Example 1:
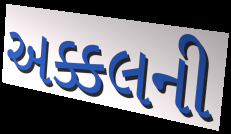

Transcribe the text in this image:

અક્કલની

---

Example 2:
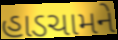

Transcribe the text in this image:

હાડચામને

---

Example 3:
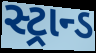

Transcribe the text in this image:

સ્ટ્રાન્ડ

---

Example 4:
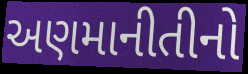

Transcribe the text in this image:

અણમાનીતીનો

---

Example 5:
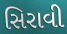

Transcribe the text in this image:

સિરાવી